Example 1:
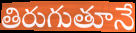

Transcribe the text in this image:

తిరుగుతూనే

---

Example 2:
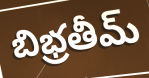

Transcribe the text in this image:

బిభ్రతీమ్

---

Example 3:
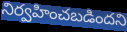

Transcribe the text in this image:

నిర్వహించబడిందని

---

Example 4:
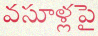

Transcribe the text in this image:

వసూళ్లపై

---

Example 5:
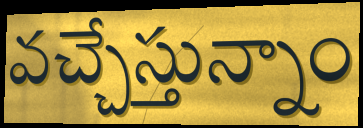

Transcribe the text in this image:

వచ్చేస్తున్నాం